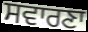
ਸਵਾਰਣਾ